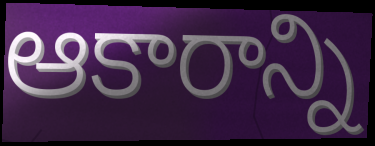
ఆకారాన్ని